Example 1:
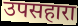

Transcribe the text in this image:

उपसहारा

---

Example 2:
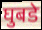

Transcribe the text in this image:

घुबडे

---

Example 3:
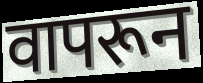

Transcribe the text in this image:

वापरून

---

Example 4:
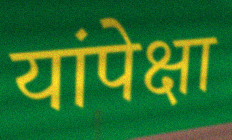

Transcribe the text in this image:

यांपेक्षा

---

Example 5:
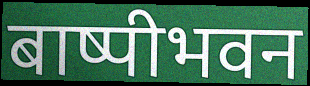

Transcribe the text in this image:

बाष्पीभवन